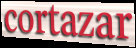
cortazar